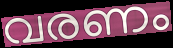
വരണം